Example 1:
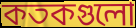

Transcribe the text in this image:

কতকগুলো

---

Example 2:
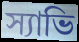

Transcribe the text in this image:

স্যাভি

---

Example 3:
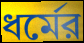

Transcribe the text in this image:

ধর্মের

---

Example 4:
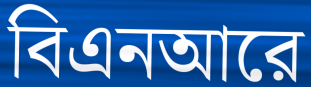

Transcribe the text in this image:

বিএনআরে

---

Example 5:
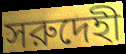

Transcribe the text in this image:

সরুদেহী